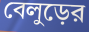
বেলুড়ের